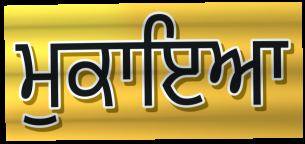
ਮੁਕਾਇਆ